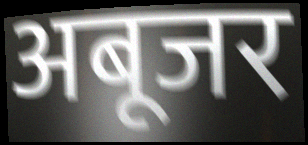
अबूजर